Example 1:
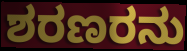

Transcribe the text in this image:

ಶರಣರನು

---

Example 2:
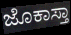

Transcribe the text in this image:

ಜೊಕಾಸ್ತಾ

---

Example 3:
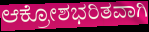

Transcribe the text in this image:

ಆಕ್ರೋಶಭರಿತವಾಗಿ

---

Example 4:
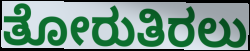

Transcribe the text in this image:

ತೋರುತಿರಲು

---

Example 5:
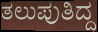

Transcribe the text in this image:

ತಲುಪುತಿದ್ದ